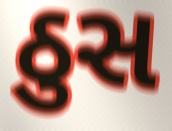
ઠુસ